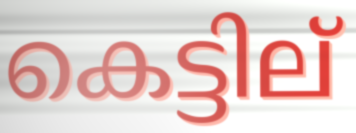
കെട്ടില്